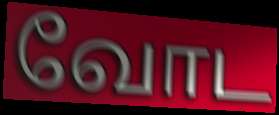
வோட